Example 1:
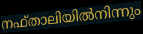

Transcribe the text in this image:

നഫ്താലിയിൽനിന്നും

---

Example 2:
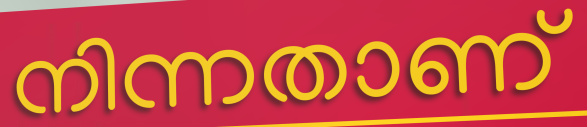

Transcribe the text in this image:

നിന്നതാണ്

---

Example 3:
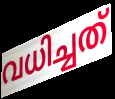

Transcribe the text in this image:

വധിച്ചത്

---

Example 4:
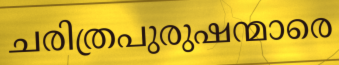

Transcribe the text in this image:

ചരിത്രപുരുഷന്മാരെ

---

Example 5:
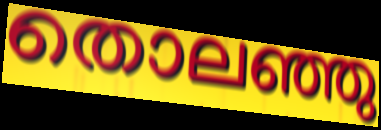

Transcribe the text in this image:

തൊലഞ്ഞു